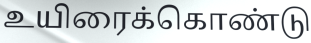
உயிரைக்கொண்டு